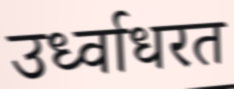
उर्ध्वाधरत